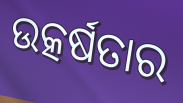
ଉତ୍କର୍ଷତାର